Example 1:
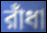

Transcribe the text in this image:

রাঁধা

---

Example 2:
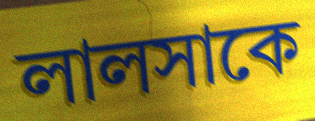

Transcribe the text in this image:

লালসাকে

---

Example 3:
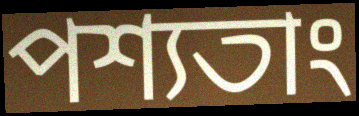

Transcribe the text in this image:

পশ্যতাং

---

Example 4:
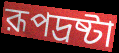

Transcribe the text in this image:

রূপদ্রষ্টা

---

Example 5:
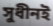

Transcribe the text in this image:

সুধীনই